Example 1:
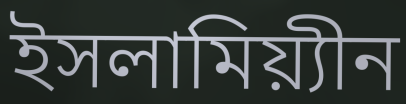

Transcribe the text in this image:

ইসলামিয়্যীন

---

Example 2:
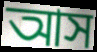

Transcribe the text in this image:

আস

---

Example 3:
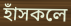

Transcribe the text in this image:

হাঁসকলে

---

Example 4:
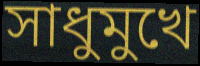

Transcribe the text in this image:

সাধুমুখে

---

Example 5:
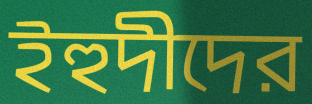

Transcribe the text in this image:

ইহুদীদের